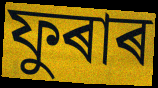
ফুৰাৰ